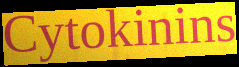
Cytokinins